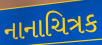
નાનાચિત્રક